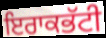
ਇਰਾਕਭੱਟੀ